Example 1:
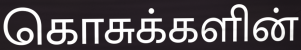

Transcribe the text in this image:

கொசுக்களின்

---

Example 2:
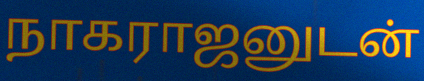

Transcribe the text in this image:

நாகராஜனுடன்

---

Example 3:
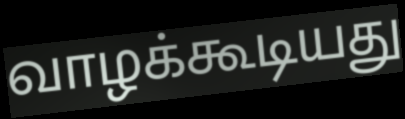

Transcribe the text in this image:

வாழக்கூடியது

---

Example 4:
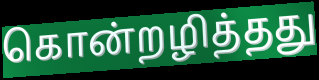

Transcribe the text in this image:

கொன்றழித்தது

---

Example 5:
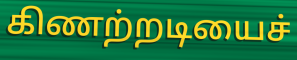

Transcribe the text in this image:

கிணற்றடியைச்